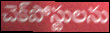
చెక్‌పోస్టులను